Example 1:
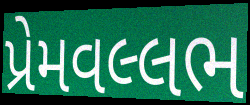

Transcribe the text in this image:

પ્રેમવલ્લભ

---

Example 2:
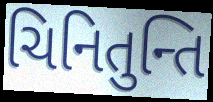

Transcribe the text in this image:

ચિનિતુન્તિ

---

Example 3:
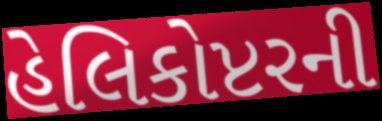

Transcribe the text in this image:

હેલિકોપ્ટરની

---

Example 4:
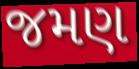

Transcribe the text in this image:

જમણ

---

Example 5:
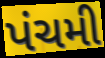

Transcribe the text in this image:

પંચમી